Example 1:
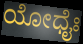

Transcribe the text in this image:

ಯೋಧೈಃ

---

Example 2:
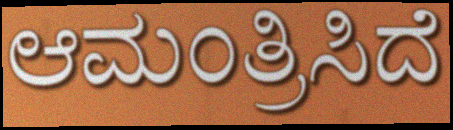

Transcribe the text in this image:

ಆಮಂತ್ರಿಸಿದೆ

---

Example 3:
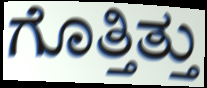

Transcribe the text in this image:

ಗೊತ್ತಿತ್ತು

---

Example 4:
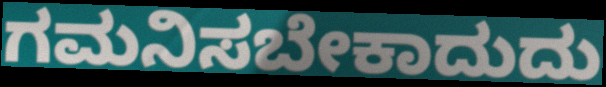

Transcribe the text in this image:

ಗಮನಿಸಬೇಕಾದುದು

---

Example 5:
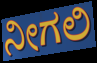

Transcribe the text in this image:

ನೀಗಲಿ